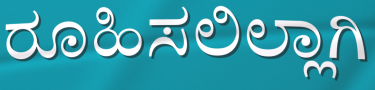
ರೂಹಿಸಲಿಲ್ಲಾಗಿ